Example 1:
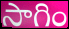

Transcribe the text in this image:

సాగిం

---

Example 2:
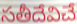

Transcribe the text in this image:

సతీదేవిచే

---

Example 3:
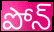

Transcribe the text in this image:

పోన్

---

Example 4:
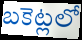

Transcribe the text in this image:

బకెట్లలో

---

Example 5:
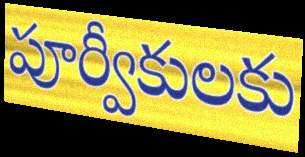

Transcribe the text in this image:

పూర్వీకులకు